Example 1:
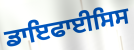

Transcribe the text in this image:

ਡਾਇਫਾਈਸਿਸ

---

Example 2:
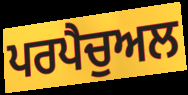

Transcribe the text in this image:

ਪਰਪੈਚੁਅਲ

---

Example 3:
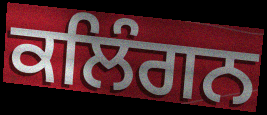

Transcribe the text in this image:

ਕਲਿੰਗਨ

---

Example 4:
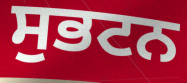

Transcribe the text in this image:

ਸੁਭਟਨ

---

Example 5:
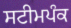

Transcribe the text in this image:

ਸਟੀਮਪੰਕ